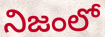
నిజంలో